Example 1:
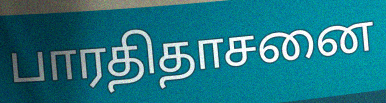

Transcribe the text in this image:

பாரதிதாசனை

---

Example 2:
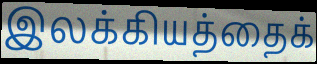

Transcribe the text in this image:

இலக்கியத்தைக்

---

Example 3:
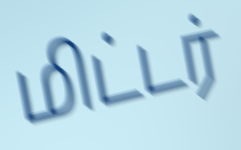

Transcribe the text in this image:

மிட்டர்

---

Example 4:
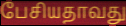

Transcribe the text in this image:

பேசியதாவது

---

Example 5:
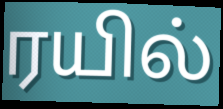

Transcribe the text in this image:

ரயில்